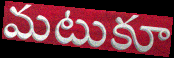
మటుకూ